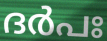
ദർപഃ